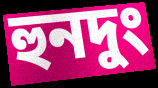
হুনদুং